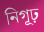
নিগূঢ়